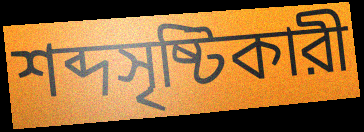
শব্দসৃষ্টিকারী